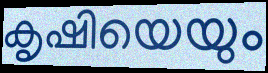
കൃഷിയെയും